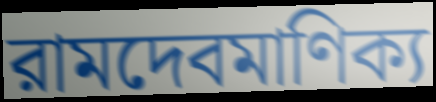
রামদেবমাণিক্য